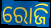
ରୋଜି